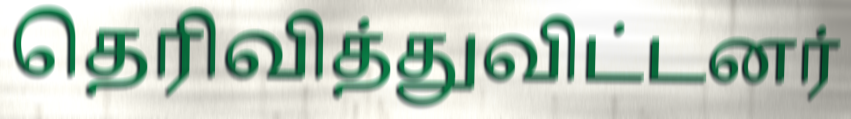
தெரிவித்துவிட்டனர்